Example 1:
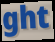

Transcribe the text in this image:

ght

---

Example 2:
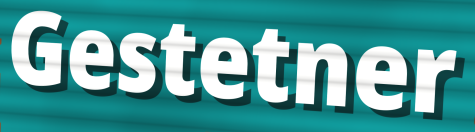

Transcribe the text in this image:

Gestetner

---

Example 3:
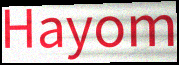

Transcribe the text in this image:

Hayom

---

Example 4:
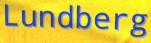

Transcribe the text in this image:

Lundberg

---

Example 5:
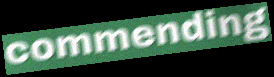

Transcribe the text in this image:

commending